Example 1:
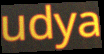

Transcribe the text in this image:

udya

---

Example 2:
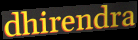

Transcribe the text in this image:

dhirendra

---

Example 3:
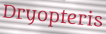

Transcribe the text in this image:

Dryopteris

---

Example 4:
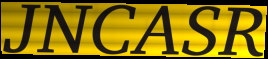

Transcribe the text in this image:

JNCASR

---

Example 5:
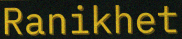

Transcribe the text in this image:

Ranikhet